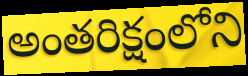
అంతరిక్షంలోని